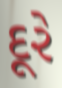
દૂરે